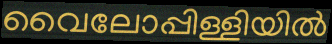
വൈലോപ്പിള്ളിയിൽ